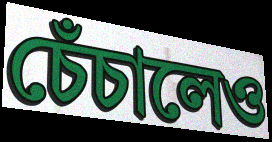
চেঁচালেও